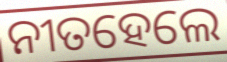
ନୀତହେଲେ